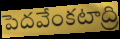
పెదవేంకటాద్రి